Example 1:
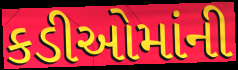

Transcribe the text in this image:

કડીઓમાંની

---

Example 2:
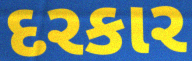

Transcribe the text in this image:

દરકાર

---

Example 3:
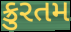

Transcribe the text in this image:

ક્રુરતમ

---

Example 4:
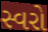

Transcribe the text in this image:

સ્વરો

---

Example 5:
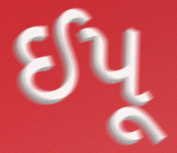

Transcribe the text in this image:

ઈપૂ